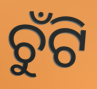
ଚୁଁଟି